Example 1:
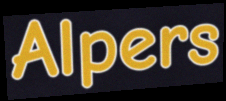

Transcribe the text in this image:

Alpers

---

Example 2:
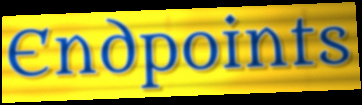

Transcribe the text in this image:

Endpoints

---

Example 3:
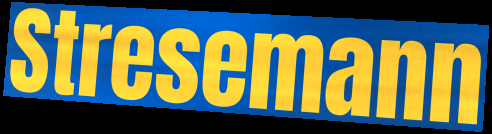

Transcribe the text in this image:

Stresemann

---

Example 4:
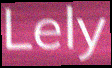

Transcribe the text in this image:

Lely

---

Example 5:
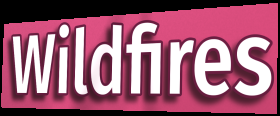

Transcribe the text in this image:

Wildfires